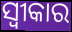
ସ୍ୱୀକାର